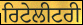
ਰਿਟੇਲੀਟਰੀ